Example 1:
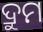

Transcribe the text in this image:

ଦ୍ରୁମ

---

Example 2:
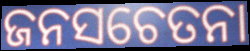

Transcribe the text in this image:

ଜନସଚେତନା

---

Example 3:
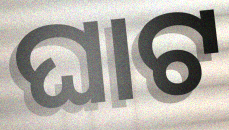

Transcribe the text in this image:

ଘାଟ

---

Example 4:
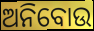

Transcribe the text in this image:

ଅନିବୋଉ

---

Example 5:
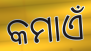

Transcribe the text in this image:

କମାଏଁ